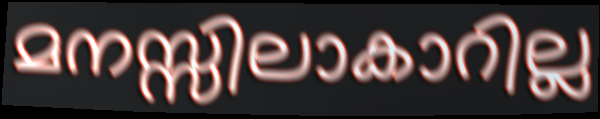
മനസ്സിലാകാറില്ല